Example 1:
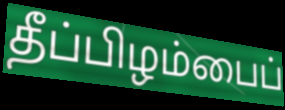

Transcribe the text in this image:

தீப்பிழம்பைப்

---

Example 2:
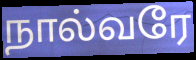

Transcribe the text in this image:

நால்வரே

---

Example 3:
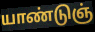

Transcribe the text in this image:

யாண்டுஞ்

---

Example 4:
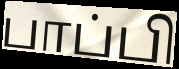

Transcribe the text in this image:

பாப்பி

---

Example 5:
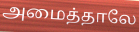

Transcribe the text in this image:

அமைத்தாலே